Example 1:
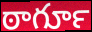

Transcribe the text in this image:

ఠాగూర్‍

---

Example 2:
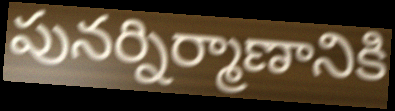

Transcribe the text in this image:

పునర్నిర్మాణానికి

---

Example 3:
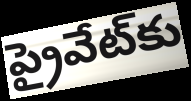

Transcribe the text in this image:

ప్రైవేట్‌కు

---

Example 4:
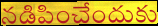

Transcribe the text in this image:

నడిపించేందుకు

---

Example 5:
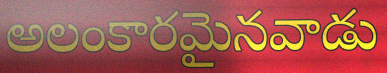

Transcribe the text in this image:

అలంకారమైనవాడు